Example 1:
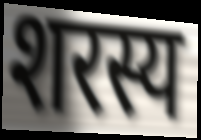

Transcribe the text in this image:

शरस्य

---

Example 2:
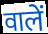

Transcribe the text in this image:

वालें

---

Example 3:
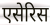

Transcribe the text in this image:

एसेरिस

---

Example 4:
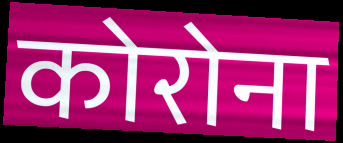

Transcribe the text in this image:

कोरोना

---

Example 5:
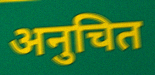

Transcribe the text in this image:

अनुचित